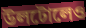
উলটোলেও